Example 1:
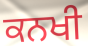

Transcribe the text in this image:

ਕਨਖੀ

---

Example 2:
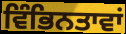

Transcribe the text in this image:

ਵਿੰਭਿਨਤਾਵਾਂ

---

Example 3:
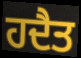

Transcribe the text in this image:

ਹਦੈਤ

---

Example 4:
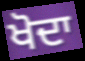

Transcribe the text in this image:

ਖੋਦਾ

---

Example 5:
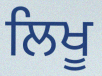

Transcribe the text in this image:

ਲਿਖੂ